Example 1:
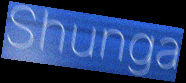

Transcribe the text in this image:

Shunga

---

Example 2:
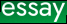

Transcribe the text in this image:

essay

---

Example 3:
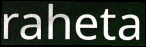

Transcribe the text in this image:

raheta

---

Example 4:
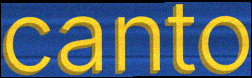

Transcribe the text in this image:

canto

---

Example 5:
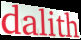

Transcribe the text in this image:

dalith